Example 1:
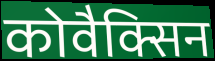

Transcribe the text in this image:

कोवैक्सिन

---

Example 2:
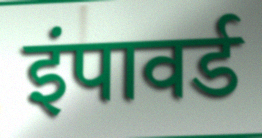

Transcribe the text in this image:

इंपावर्ड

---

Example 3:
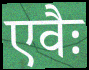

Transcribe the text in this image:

एवैः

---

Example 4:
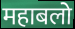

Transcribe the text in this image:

महाबलो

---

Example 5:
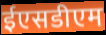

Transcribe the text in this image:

ईएसडीएम